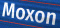
Moxon